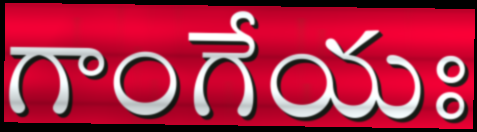
గాంగేయః